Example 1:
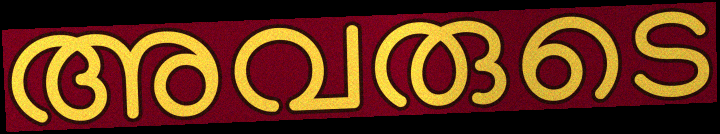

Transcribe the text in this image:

അവരുടെ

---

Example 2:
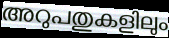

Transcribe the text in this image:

അറുപതുകളിലും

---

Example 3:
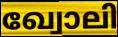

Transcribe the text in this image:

ഖ്വോലി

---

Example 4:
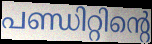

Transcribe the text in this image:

പണ്ഡിറ്റിന്റെ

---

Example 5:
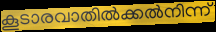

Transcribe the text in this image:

കൂടാരവാതിൽക്കൽനിന്ന്